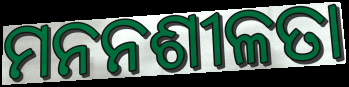
ମନନଶୀଳତା